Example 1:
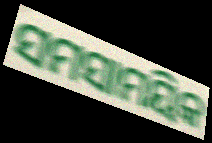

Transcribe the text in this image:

ସମସାମୟିକ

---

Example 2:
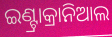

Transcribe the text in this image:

ଇଣ୍ଟ୍ରାକ୍ରାନିଆଲ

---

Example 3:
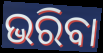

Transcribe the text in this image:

ଭରିବା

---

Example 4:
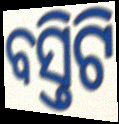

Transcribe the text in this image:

ବସ୍ତିଟି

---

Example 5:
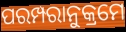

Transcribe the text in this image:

ପରମ୍ପରାନୁକ୍ରମେ